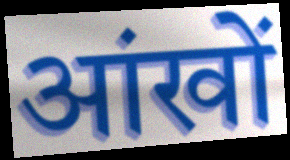
आंखों